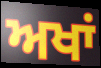
ਅਖਾਂ